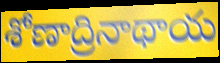
శోణాద్రినాథాయ